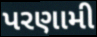
પરણામી